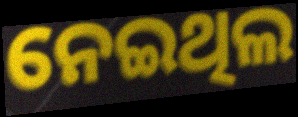
ନେଇଥିଲ